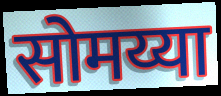
सोमय्या